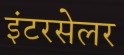
इंटरसेलर